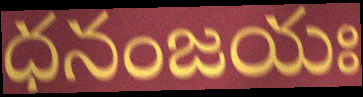
ధనంజయః